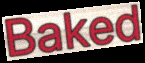
Baked